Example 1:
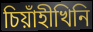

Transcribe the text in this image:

চিয়াঁহীখিনি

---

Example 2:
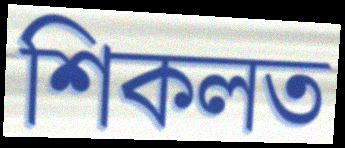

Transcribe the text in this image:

শিকলত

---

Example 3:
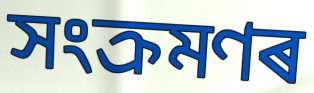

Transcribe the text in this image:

সংক্ৰমণৰ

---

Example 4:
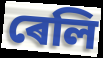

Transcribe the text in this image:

ৰেলি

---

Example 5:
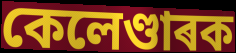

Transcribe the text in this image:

কেলেণ্ডাৰক